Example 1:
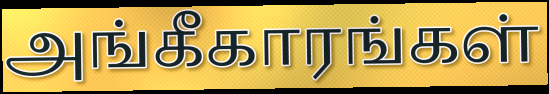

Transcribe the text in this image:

அங்கீகாரங்கள்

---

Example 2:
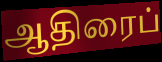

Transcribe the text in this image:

ஆதிரைப்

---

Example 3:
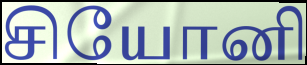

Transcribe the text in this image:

சியோனி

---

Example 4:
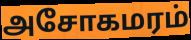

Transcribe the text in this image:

அசோகமரம்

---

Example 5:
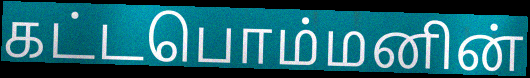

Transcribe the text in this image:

கட்டபொம்மனின்